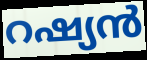
റഷ്യൻ